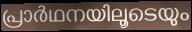
പ്രാർഥനയിലൂടെയും